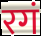
रगं